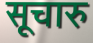
सूचारु